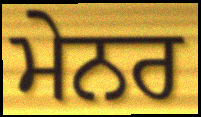
ਮੇਨਰ